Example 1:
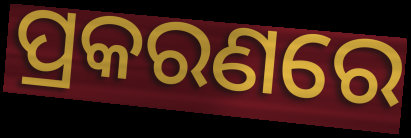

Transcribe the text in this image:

ପ୍ରକରଣରେ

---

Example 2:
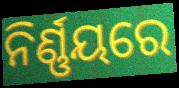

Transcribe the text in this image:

ନିର୍ଣ୍ଣୟରେ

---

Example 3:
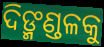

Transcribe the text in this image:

ଦିଙ୍ମଣ୍ଡଳକୁ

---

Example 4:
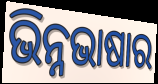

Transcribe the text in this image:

ଭିନ୍ନଭାଷାର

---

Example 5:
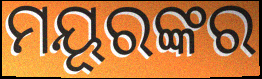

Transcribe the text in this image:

ମୟୂରଙ୍କର